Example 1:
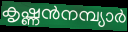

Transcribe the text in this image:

കൃഷ്ണൻനമ്പ്യാർ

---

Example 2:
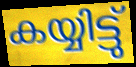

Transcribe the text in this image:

കയ്യിട്ടു്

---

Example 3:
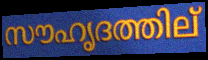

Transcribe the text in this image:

സൗഹൃദത്തില്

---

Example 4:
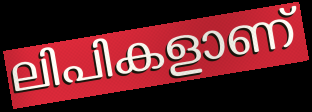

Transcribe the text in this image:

ലിപികളാണ്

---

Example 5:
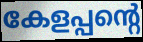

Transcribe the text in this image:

കേളപ്പന്റെ